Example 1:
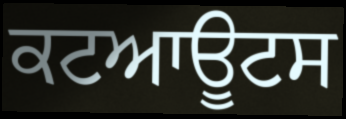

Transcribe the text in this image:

ਕਟਆਊਟਸ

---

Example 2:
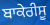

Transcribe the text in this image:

ਬਾਕੇਰੀਸੂ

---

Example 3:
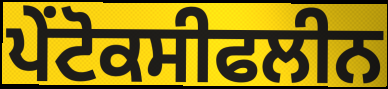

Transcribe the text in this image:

ਪੇਂਟੋਕਸੀਫਲੀਨ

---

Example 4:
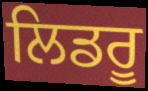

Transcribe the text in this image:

ਲਿਡਰੂ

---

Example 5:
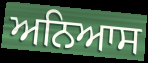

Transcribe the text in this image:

ਅਨਿਆਸ